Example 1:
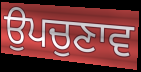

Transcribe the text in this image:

ਉਪਚੁਣਾਵ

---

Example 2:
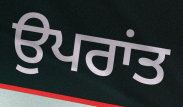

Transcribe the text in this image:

ਉਪਰਾਂਤ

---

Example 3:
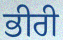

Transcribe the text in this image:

ਭੀਰੀ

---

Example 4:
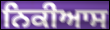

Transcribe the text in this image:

ਨਿਕੀਆਸ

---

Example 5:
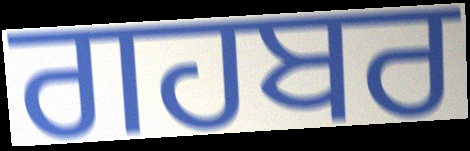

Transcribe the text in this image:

ਗਹਬਰ